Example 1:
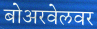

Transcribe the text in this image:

बोअरवेलवर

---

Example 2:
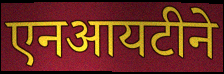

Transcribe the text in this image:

एनआयटीने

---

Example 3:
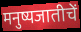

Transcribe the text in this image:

मनुष्यजातीचें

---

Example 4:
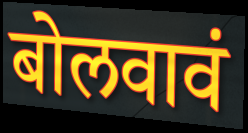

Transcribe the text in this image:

बोलवावं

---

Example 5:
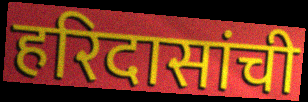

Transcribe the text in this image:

हरिदासांची